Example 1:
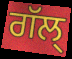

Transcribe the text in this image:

ਗੱਲ੍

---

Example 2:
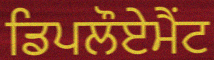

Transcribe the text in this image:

ਡਿਪਲੌਏਮੈਂਟ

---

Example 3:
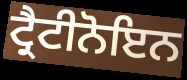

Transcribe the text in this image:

ਟ੍ਰੈਟੀਨੋਇਨ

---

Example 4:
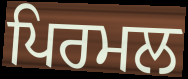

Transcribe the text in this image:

ਪਿਰਮਲ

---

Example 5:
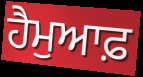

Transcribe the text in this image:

ਹੈਮੁਆਫ਼